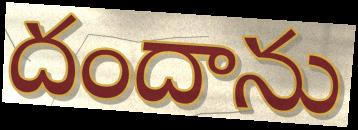
దందాను